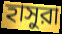
হাসুরা